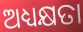
ଅଧ୍ୟକ୍ଷତା